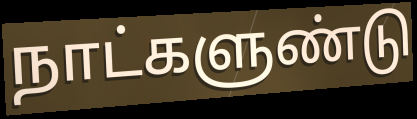
நாட்களுண்டு